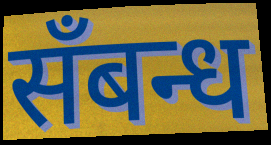
सँबन्ध